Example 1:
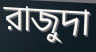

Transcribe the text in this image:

রাজুদা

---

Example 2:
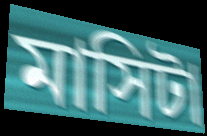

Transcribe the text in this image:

মাসিটা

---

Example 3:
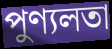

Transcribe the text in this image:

পুণ্যলতা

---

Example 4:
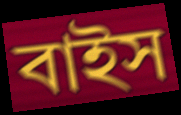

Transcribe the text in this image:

বাইস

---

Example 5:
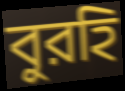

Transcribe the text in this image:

বুরহি